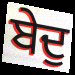
ਬੇਦੁ